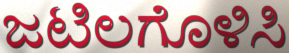
ಜಟಿಲಗೊಳಿಸಿ